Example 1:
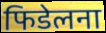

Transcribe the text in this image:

फिडेलना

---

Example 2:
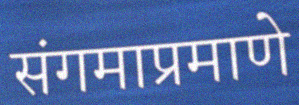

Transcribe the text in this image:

संगमाप्रमाणे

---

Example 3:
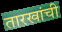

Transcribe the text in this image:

तारखांची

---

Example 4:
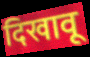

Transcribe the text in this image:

दिखावू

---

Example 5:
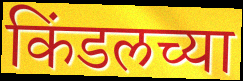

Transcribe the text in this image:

किंडलच्या